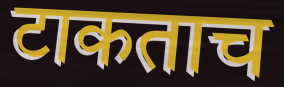
टाकताच